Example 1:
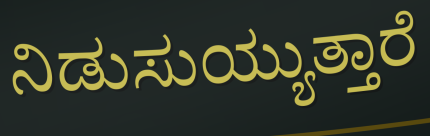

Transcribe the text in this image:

ನಿಡುಸುಯ್ಯುತ್ತಾರೆ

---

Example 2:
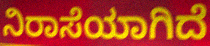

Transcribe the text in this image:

ನಿರಾಸೆಯಾಗಿದೆ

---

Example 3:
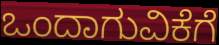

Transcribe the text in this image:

ಒಂದಾಗುವಿಕೆಗೆ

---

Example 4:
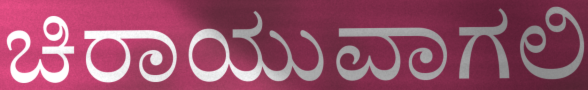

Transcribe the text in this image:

ಚಿರಾಯುವಾಗಲಿ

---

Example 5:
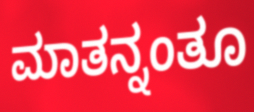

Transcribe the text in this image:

ಮಾತನ್ನಂತೂ